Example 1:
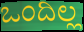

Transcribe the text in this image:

ಒಂದಿಲ್ಲ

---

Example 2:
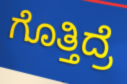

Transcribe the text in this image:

ಗೊತ್ತಿದ್ರೆ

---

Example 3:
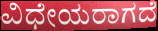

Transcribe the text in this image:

ವಿಧೇಯರಾಗದೆ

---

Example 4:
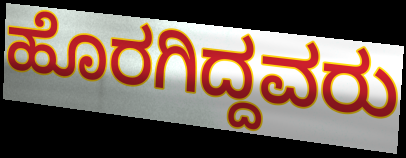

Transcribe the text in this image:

ಹೊರಗಿದ್ದವರು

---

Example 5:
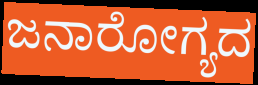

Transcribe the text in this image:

ಜನಾರೋಗ್ಯದ